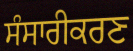
ਸੰਸਾਰੀਕਰਣ